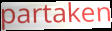
partaken